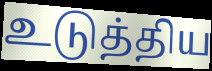
உடுத்திய